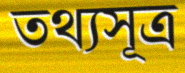
তথ্যসূত্ৰ